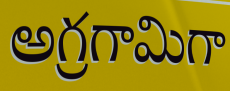
అగ్రగామిగా